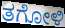
ತಗೋಳಿ